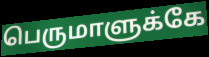
பெருமாளுக்கே